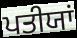
ਪਤੀਯਾਂ